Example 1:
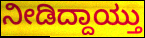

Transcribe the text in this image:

ನೀಡಿದ್ದಾಯ್ತು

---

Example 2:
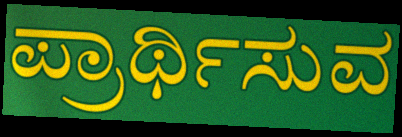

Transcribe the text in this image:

ಪ್ರಾರ್ಥಿಸುವ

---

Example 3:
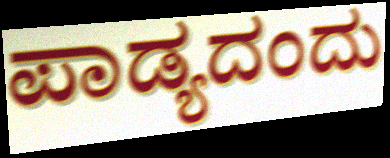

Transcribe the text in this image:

ಪಾಡ್ಯದಂದು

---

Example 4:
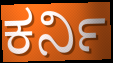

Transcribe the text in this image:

ಕರ್ನಿ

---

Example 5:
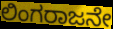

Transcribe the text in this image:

ಲಿಂಗರಾಜನೇ